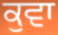
ਕੁਵਾ